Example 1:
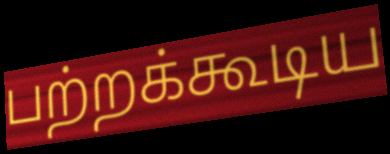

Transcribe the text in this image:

பற்றக்கூடிய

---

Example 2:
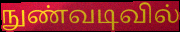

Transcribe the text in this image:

நுண்வடிவில்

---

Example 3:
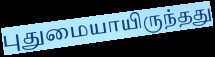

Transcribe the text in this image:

புதுமையாயிருந்தது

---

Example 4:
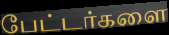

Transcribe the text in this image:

பேட்டர்களை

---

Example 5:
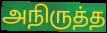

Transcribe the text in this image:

அநிருத்த